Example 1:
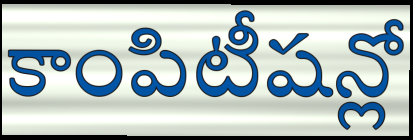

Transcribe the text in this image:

కాంపిటీషన్లో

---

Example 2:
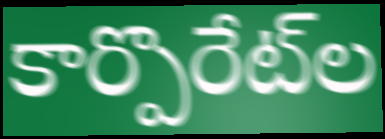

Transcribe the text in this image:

కార్పొరేట్‌ల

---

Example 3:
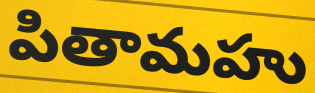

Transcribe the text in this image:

పితామహు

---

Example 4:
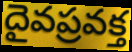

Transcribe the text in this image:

దైవప్రవక్త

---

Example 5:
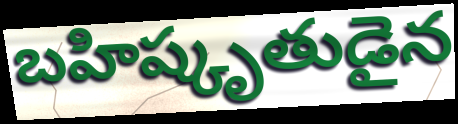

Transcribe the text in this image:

బహిష్కృతుడైన